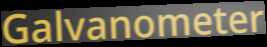
Galvanometer